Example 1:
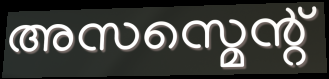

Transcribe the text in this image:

അസസ്മെന്റ്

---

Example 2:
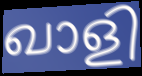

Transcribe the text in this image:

ഖാളി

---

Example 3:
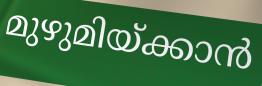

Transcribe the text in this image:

മുഴുമിയ്ക്കാൻ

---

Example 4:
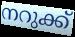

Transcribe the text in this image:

നറുക്ക്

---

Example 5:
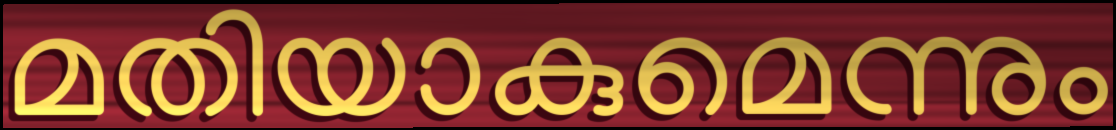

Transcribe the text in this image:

മതിയാകുമെന്നും